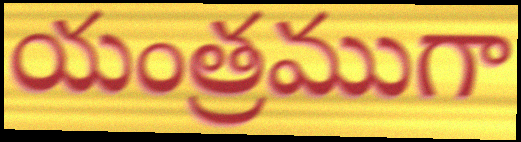
యంత్రముగా